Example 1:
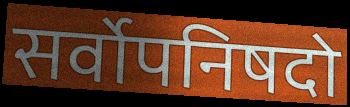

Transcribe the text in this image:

सर्वोपनिषदो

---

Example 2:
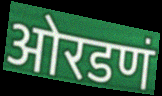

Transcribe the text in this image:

ओरडणं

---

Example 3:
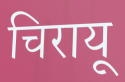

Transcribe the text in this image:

चिरायू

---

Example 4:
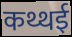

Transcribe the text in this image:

कथ्थई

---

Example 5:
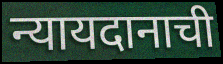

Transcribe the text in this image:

न्यायदानाची